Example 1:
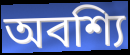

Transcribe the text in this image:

অবশ্যি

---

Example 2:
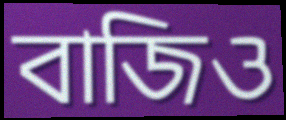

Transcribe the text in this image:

বাজিও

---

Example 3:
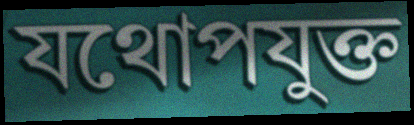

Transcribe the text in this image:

যথোপযুক্ত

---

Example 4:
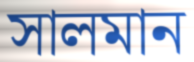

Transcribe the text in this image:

সালমান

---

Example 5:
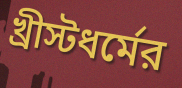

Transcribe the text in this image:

খ্রীস্টধর্মের